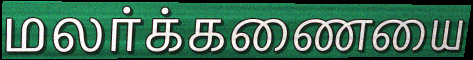
மலர்க்கணையை